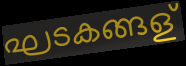
ഘടകങ്ങള്